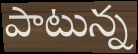
పాటున్న